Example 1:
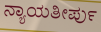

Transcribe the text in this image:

ನ್ಯಾಯತೀರ್ಪು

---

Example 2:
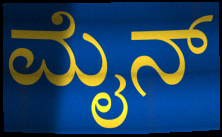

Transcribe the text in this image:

ಮೈನ್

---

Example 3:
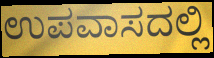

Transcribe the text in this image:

ಉಪವಾಸದಲ್ಲಿ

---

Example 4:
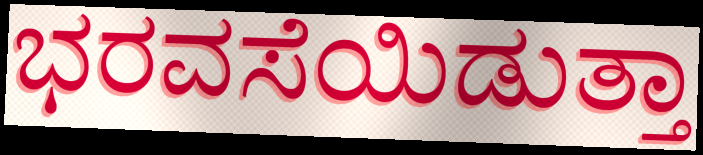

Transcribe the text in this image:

ಭರವಸೆಯಿಡುತ್ತಾ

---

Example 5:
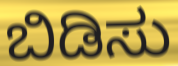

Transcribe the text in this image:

ಬಿಡಿಸು